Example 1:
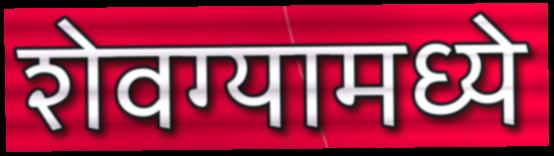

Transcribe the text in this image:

शेवग्यामध्ये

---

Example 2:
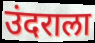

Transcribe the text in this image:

उंदराला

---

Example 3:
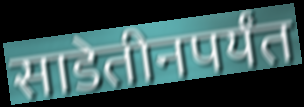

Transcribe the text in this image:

साडेतीनपर्यंत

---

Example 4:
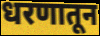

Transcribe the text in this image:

धरणातून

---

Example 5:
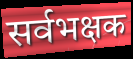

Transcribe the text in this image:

सर्वभक्षक